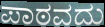
ಪಾಠವದು